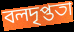
বলদৃপ্ততা